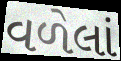
વળેલાં